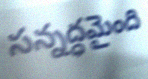
సన్నద్ధమైంది